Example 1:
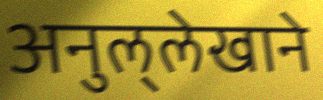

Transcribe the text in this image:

अनुल्लेखाने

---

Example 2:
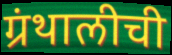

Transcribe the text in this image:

ग्रंथालीची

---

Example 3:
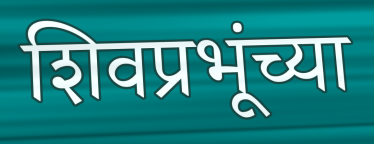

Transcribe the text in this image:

शिवप्रभूंच्या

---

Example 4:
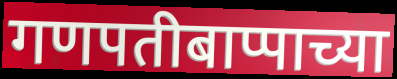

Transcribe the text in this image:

गणपतीबाप्पाच्या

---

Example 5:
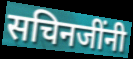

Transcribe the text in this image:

सचिनजींनी